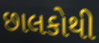
છાલકોથી